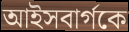
আইসবার্গকে